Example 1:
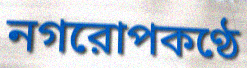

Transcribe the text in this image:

নগরোপকণ্ঠে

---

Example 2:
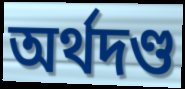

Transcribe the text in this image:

অর্থদণ্ড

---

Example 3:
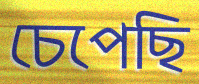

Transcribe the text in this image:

চেপেছি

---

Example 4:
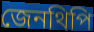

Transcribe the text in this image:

জেনথিপি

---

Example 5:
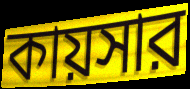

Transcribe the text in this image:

কায়সার